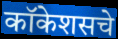
कॉकेशसचे